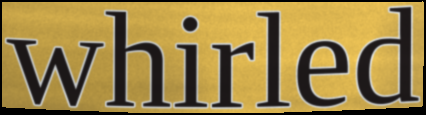
whirled